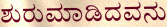
ಶುರುಮಾಡಿದವನು